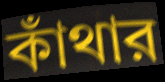
কাঁথার